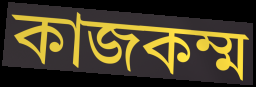
কাজকম্ম